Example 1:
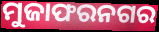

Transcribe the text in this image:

ମୁଜାଫରନଗର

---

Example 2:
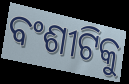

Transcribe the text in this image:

ବଂଶୀଟିକୁ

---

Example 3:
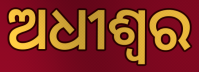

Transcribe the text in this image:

ଅଧୀଶ୍ୱର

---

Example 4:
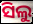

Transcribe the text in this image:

ସିଲୁ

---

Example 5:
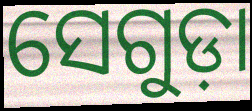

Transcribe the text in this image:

ସେଗୁଡ଼ା